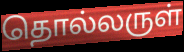
தொல்லருள்